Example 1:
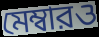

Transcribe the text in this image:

মেম্বারও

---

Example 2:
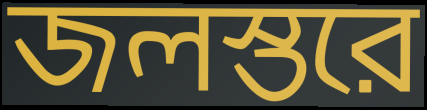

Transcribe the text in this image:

জলস্তরে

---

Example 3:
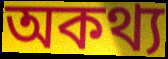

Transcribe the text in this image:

অকথ্য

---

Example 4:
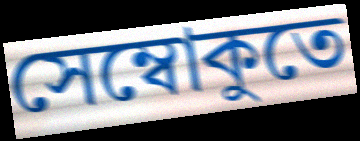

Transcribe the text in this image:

সেম্বোকুতে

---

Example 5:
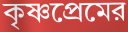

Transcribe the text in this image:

কৃষ্ণপ্রেমের